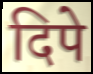
दिपे